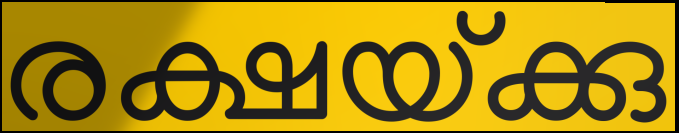
രക്ഷയ്‌ക്കു